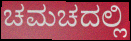
ಚಮಚದಲ್ಲಿ